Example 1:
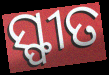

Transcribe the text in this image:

ସ୍ଫୀତ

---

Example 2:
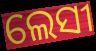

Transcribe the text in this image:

ଲେସୀ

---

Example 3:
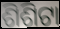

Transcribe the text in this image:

ଶିଶିଟା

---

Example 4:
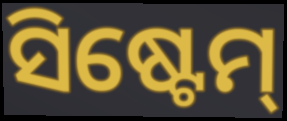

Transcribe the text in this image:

ସିଷ୍ଟେମ୍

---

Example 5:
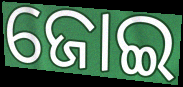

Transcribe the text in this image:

ଜୋଇ